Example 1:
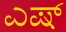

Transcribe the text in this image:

ಎಷ್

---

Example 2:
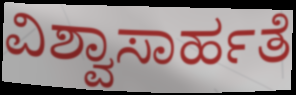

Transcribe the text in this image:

ವಿಶ್ವಾಸಾರ್ಹತೆ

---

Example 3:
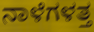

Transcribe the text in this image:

ನಾಳೆಗಳತ್ತ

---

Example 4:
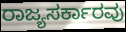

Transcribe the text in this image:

ರಾಜ್ಯಸರ್ಕಾರವು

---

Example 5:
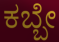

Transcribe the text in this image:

ಕಬ್ಬೇ